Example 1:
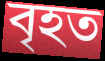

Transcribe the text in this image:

বৃহত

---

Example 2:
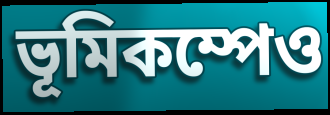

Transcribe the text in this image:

ভূমিকম্পেও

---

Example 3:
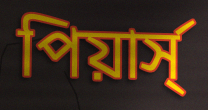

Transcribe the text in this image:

পিয়ার্স্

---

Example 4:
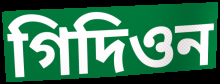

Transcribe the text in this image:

গিদিওন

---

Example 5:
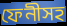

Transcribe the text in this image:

ফেনীসহ